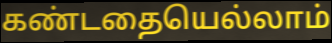
கண்டதையெல்லாம்